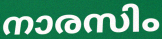
നാരസിം